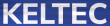
KELTEC